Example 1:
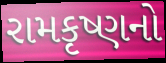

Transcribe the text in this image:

રામકૃષ્ણનો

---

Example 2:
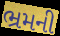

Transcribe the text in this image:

ભ્રમની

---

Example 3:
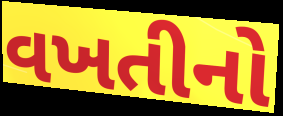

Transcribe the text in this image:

વખતીનો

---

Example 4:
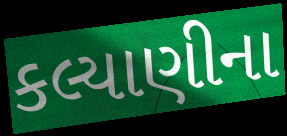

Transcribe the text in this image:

કલ્યાણીના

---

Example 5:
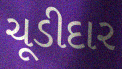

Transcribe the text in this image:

ચૂડીદાર